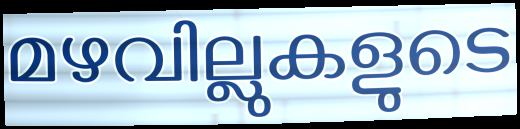
മഴവില്ലുകളുടെ